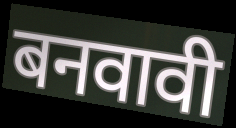
बनवावी